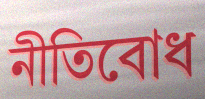
নীতিবোধ